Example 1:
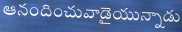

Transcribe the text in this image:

ఆనందించువాడైయున్నాడు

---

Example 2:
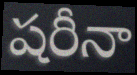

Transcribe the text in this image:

షరీనా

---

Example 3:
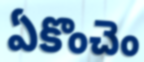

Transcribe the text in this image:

ఏకొంచెం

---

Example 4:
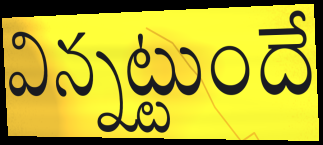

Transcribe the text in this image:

విన్నట్టుందే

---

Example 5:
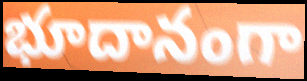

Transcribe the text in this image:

భూదానంగా